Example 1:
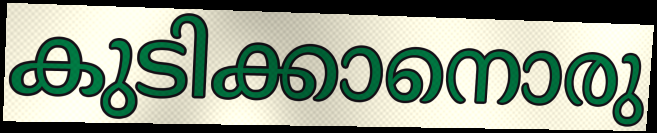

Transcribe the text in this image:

കുടിക്കാനൊരു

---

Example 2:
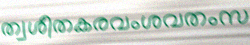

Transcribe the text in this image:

ത്വശീതകരവംശവതംസ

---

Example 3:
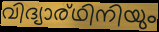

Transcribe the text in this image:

വിദ്യാര്ഥിനിയും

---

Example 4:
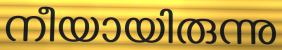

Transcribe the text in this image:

നീയായിരുന്നു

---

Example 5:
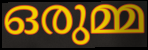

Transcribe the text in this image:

ഒരുമ്മ